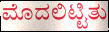
ಮೊದಲಿಟ್ಟಿತು